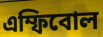
এম্ফিবোল